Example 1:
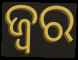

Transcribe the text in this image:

ଜ୍ଵର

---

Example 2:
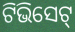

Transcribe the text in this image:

ଟିଭିସେଟ୍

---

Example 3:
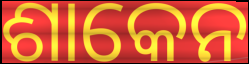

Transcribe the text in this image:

ଶାକେନ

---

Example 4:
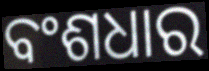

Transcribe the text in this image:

ବଂଶଧାର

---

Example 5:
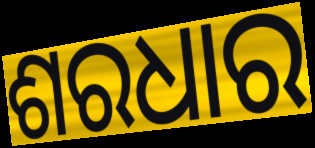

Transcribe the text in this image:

ଶରଧାର